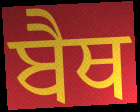
ਬੈਥ